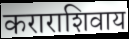
कराराशिवाय